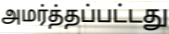
அமர்த்தப்பட்டது